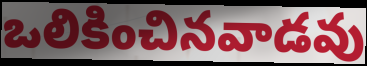
ఒలికించినవాడవు